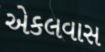
એકલવાસ